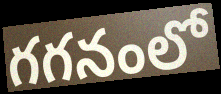
గగనంలో